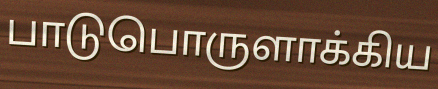
பாடுபொருளாக்கிய